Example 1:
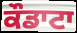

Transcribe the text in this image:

ਕੌਡਾਟਾ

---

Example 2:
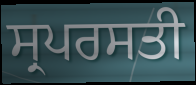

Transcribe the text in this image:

ਸ੍ਰਪਰਸਤੀ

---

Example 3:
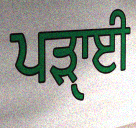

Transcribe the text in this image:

ਪੜਾੑਈ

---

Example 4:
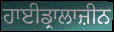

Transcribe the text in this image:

ਹਾਈਡ੍ਰਾਲਾਜ਼ੀਨ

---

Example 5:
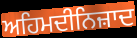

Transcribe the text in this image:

ਅਹਿਮਦੀਨਿਜ਼ਾਦ